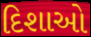
દિશાઓ